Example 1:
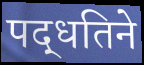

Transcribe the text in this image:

पद्धतिने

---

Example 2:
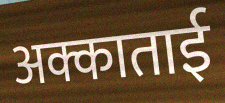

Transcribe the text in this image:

अक्काताई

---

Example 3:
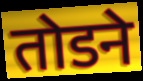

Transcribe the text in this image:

तोडने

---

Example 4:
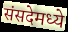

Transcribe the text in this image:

संसदेमध्ये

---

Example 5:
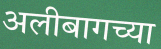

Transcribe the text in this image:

अलीबागच्या